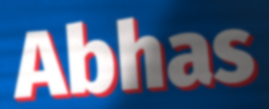
Abhas